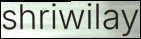
shriwilay